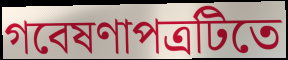
গবেষণাপত্রটিতে